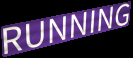
RUNNING